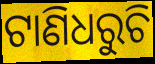
ଟାଣିଧରୁଚି